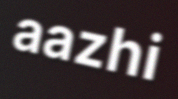
aazhi